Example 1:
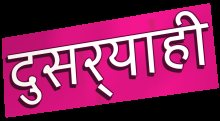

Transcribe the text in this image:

दुसर्‍याही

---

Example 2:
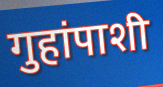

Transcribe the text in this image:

गुहांपाशी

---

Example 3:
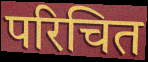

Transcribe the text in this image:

परिचित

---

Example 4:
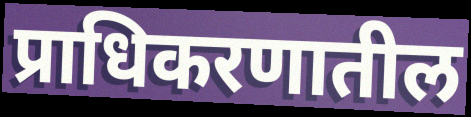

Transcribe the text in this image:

प्राधिकरणातील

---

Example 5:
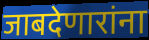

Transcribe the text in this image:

जाबदेणारांना